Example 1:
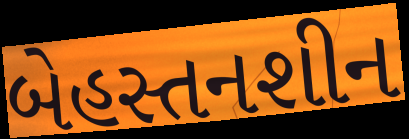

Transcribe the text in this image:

બેહસ્તનશીન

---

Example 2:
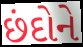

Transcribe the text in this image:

છંદોને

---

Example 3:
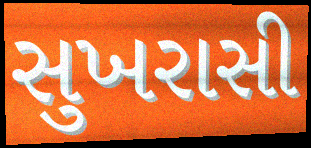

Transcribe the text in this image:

સુખરાસી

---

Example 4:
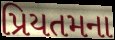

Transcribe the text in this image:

પ્રિયતમના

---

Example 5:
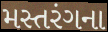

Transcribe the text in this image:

મસ્તરંગના